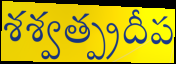
శశ్వత్ప్రదీప